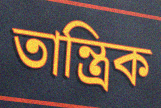
তান্ত্রিক